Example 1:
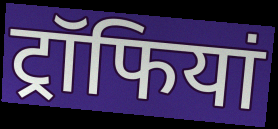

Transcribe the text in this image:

ट्रॉफियां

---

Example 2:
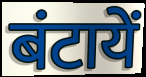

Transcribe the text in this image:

बंटायें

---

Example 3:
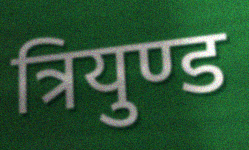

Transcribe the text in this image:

त्रियुण्ड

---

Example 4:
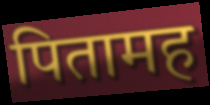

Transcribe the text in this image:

पितामह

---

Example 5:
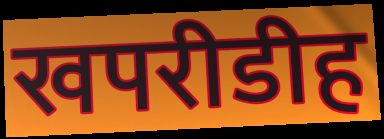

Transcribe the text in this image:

खपरीडीह